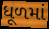
ધૂળમાં